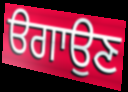
ੳਗਾਉਣ